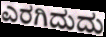
ಎರಗಿದುದು